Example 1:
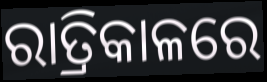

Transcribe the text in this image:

ରାତ୍ରିକାଳରେ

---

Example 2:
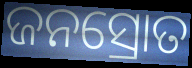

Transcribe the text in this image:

ଜନସ୍ରୋତ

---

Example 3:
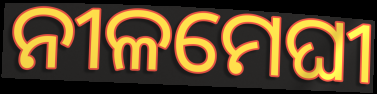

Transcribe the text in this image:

ନୀଳମେଘୀ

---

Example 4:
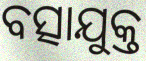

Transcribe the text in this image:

ବତ୍ସାଯୁକ୍ତ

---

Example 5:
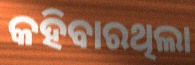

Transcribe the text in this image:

କହିବାରଥିଲା